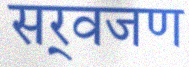
सर्वजण